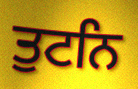
ਤੁਟਨਿ